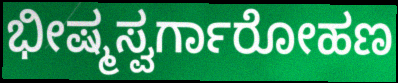
ಭೀಷ್ಮಸ್ವರ್ಗಾರೋಹಣ